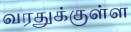
வரதுக்குள்ள